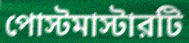
পোস্টমাস্টারটি